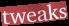
tweaks